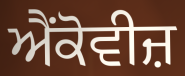
ਐਂਕੋਵੀਜ਼